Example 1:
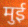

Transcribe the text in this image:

मुई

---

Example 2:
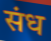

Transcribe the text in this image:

संध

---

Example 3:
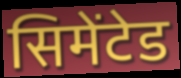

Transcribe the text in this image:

सिमेंटेड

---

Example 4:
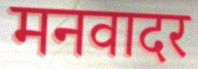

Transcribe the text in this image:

मनवादर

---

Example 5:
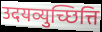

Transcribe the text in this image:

उदयव्युच्छित्ति